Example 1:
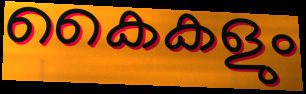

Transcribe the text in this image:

കൈകളും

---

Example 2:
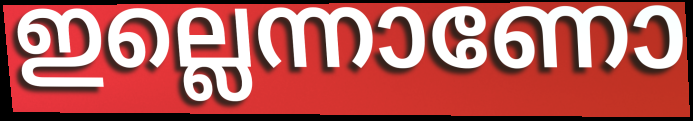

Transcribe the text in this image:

ഇല്ലെന്നാണോ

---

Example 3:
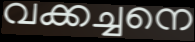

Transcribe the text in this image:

വക്കച്ചനെ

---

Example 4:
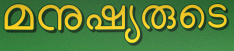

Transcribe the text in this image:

മനുഷ്യരുടെ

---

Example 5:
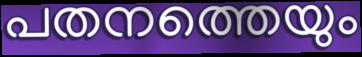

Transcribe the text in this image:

പതനത്തെയും